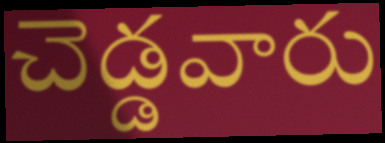
చెడ్డవారు